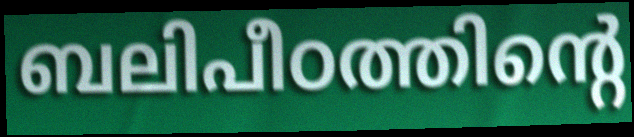
ബലിപീഠത്തിന്റെ